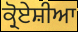
ਕ੍ਰੋਏਸ਼ੀਆ